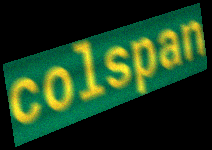
colspan